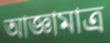
আজ্ঞামাত্র